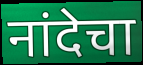
नांदेचा